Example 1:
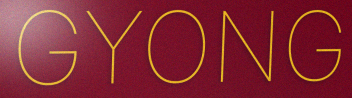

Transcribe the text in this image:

GYONG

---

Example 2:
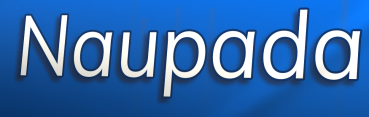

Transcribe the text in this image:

Naupada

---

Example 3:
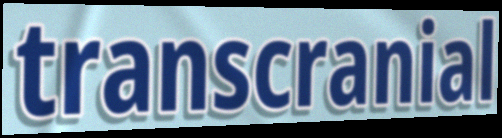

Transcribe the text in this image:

transcranial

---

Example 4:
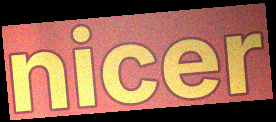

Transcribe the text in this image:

nicer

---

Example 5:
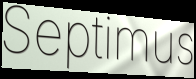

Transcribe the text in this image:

Septimus